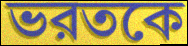
ভরতকে